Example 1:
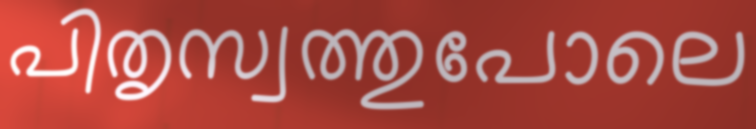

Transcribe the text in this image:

പിതൃസ്വത്തുപോലെ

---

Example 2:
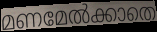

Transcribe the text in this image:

മണമേൽക്കാതെ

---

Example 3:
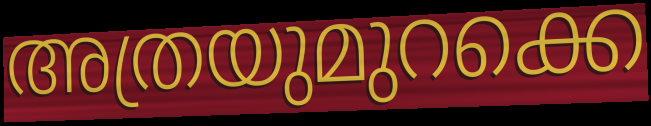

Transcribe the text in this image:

അത്രയുമുറക്കെ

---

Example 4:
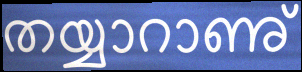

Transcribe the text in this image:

തയ്യാറാണു്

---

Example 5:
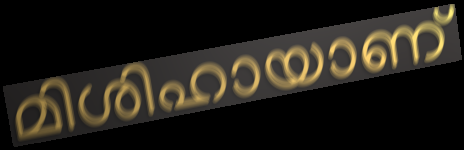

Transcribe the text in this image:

മിശിഹായാണ്